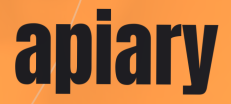
apiary